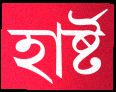
হাৰ্ষ্ট